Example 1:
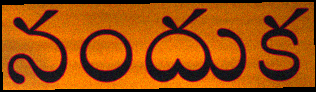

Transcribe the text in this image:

నందుక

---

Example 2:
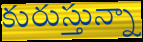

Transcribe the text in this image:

కురుస్తున్నా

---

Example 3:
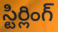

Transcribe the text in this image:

స్టిర్లింగ్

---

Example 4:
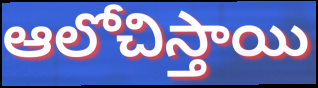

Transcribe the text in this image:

ఆలోచిస్తాయి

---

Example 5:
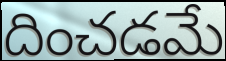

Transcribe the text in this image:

దించడమే